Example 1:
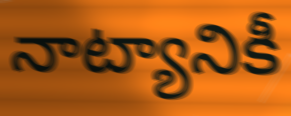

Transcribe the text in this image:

నాట్యానికీ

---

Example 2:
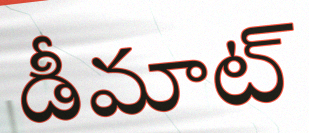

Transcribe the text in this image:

డీమాట్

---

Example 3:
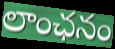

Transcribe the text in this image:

లాంఛనం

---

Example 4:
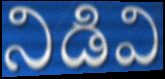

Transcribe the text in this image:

నిడివి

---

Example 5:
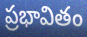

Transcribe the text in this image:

ప్రభావితం